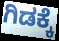
ಗಿಡಕ್ಕೆ